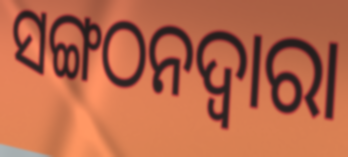
ସଙ୍ଗଠନଦ୍ୱାରା